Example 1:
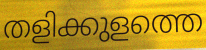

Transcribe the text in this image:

തളിക്കുളത്തെ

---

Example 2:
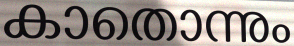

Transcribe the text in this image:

കാതൊന്നും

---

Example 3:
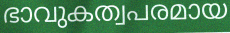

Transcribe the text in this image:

ഭാവുകത്വപരമായ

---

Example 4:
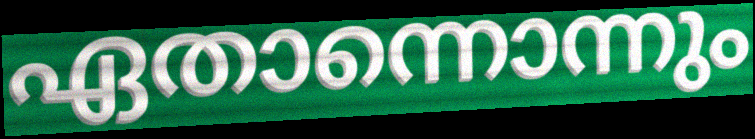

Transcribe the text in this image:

ഏതാന്നൊന്നും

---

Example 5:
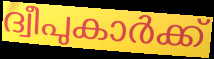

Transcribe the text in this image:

ദ്വീപുകാർക്ക്